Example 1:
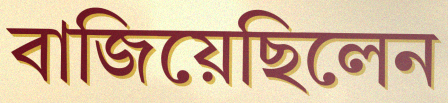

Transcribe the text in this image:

বাজিয়েছিলেন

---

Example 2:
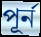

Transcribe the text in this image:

পূর্ন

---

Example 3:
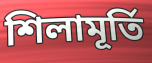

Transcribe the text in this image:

শিলামূর্তি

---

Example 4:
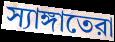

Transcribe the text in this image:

স্যাঙ্গাতেরা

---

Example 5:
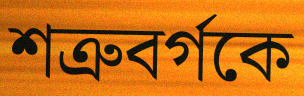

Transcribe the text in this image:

শত্রুবর্গকে